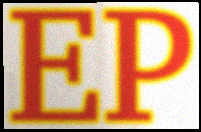
EP